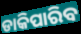
ଡାକିପାରିବ